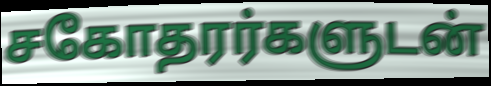
சகோதரர்களுடன்